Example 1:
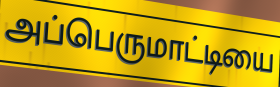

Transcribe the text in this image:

அப்பெருமாட்டியை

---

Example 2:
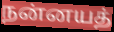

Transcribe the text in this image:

நன்னயத்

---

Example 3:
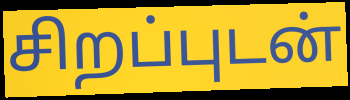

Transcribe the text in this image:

சிறப்புடன்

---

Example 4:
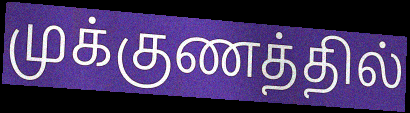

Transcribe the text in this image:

முக்குணத்தில்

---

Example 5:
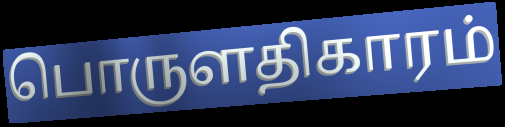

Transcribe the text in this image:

பொருளதிகாரம்